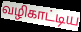
வழிகாட்டிய